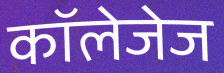
कॉलेजेज